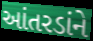
આંતરડાંને